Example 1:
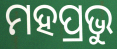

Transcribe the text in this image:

ମହପ୍ରଭୁ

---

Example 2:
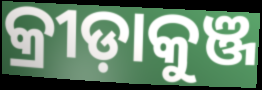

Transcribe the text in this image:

କ୍ରୀଡ଼ାକୁଞ୍ଜ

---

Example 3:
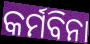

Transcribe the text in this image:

କର୍ମବିନା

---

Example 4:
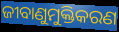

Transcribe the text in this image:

ଜୀବାଣୁମୁକ୍ତିକରଣ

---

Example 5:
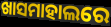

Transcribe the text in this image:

ଖାସମାହାଲରେ